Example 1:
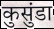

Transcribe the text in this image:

कुसुंडा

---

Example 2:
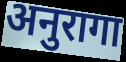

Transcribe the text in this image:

अनुरागा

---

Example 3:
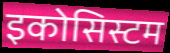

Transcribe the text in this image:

इकोसिस्टम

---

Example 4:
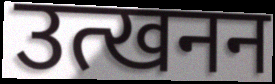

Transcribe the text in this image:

उत्‍खनन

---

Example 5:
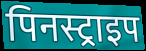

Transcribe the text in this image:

पिनस्ट्राइप